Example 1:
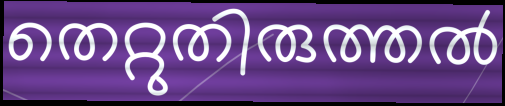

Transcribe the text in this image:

തെറ്റുതിരുത്തൽ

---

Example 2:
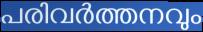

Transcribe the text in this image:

പരിവർത്തനവും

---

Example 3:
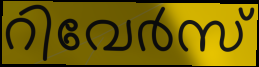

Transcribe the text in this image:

റിവേർസ്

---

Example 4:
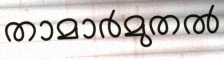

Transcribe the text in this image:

താമാർമുതൽ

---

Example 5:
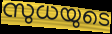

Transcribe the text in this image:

സുധയുടെ